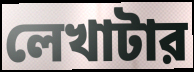
লেখাটার